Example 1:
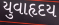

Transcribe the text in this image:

યુવાહૃદય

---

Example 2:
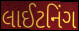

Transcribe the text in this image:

લાઈટનિંગ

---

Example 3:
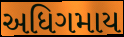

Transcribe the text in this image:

અધિગમાય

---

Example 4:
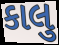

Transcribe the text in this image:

કાલુ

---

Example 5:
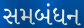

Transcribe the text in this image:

સમબંધન